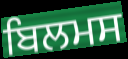
ਬਿਲਮਸ